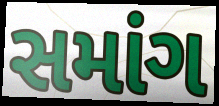
સમાંગ